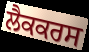
ਲੈਕਕਰਸ